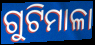
ଗୁଟିମାଳା